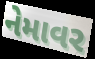
નેમાવર